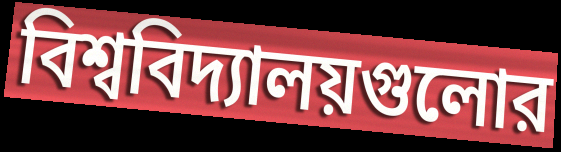
বিশ্ববিদ্যালয়গুলোর